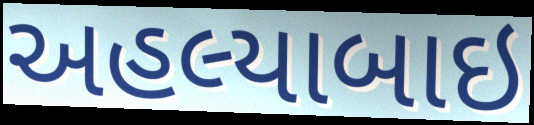
અહલ્યાબાઇ